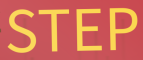
STEP